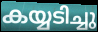
കയ്യടിച്ചു